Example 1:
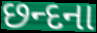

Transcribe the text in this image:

છન્દના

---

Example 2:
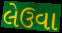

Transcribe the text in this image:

લેઉવા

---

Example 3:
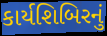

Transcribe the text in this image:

કાર્યશિબિરનું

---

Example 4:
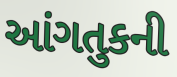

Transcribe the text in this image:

આંગતુકની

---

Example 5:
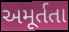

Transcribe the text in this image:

અમૂર્તતા